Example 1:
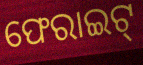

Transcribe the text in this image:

ଫେରାଇଟ୍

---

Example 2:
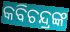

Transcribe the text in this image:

କବିଚନ୍ଦ୍ରଙ୍କ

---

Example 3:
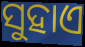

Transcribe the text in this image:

ସୁହାଏ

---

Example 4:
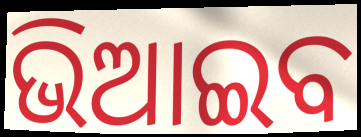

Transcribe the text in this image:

ଭିଆଇବ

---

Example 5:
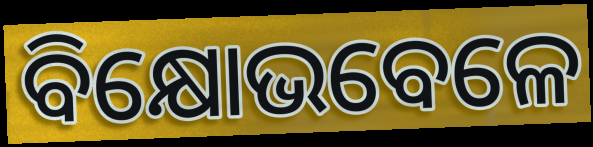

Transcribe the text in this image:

ବିକ୍ଷୋଭବେଳେ